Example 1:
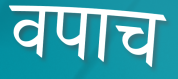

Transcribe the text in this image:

वपाच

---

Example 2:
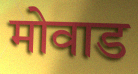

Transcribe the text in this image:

मोवाड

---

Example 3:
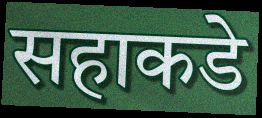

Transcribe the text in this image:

सहाकडे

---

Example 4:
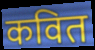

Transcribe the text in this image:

कवित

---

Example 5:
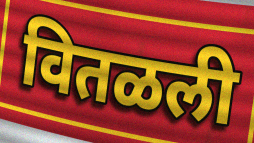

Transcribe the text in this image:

वितळली